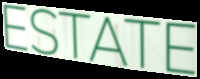
ESTATE